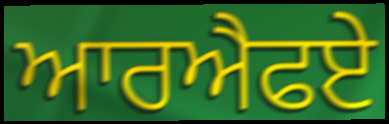
ਆਰਐਫਏ